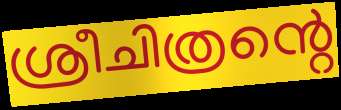
ശ്രീചിത്രന്റെ